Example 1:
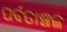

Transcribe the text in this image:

ପର୍ବତାଞ୍ଚଳ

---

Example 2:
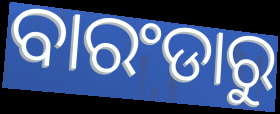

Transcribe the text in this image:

ବାରଂଡାରୁ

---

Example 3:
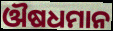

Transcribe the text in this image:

ଔଷଧମାନ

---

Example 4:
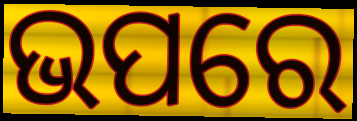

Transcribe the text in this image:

ଭପରେ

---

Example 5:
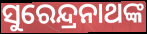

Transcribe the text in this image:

ସୁରେନ୍ଦ୍ରନାଥଙ୍କ